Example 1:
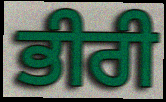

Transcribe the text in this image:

ਭੀਰੀ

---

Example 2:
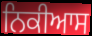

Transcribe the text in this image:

ਨਿਕੀਆਸ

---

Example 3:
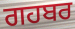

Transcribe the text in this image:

ਗਹਬਰ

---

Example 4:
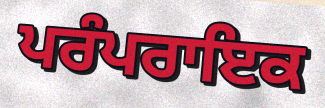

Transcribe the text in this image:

ਪਰੰਪਰਾਇਕ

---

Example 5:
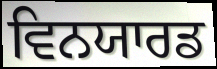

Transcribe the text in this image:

ਵਿਨਯਾਰਡ